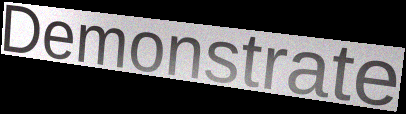
Demonstrate